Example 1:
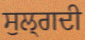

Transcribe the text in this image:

ਸੁਲ੍ਗਦੀ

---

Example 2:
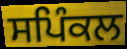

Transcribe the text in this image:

ਸਪਿੰਕਲ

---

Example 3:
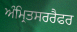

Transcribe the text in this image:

ਅੰਮ੍ਰਿਤਸਰਰੈਫਰ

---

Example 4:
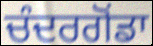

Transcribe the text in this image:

ਚੰਦਰਗੋਂਡਾ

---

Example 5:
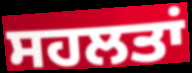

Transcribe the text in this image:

ਸਹਲਤਾਂ